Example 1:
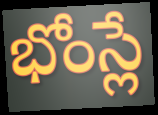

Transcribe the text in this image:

భోంస్లే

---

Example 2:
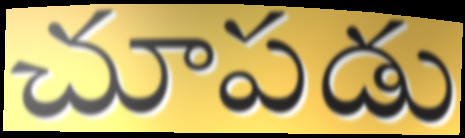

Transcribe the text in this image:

చూపడు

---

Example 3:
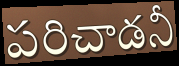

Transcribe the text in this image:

పరిచాడనీ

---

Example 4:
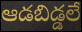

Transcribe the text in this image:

ఆడబిడ్డలే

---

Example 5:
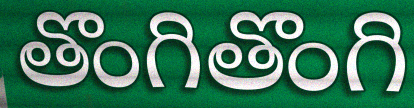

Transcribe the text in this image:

తొంగితొంగి